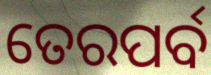
ତେରପର୍ବ